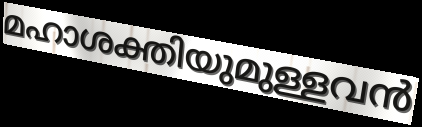
മഹാശക്തിയുമുള്ളവൻ